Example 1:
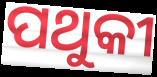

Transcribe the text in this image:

ପଥୁକୀ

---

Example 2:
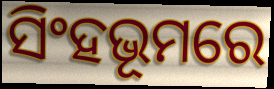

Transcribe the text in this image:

ସିଂହଭୂମରେ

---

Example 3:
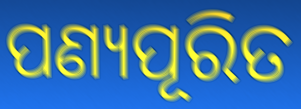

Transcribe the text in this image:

ପଣ୍ୟପୂରିତ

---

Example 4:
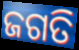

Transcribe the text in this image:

ଜଗତି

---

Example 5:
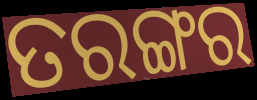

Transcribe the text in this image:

ତରଙ୍ଗର